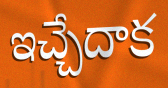
ఇచ్చేదాక